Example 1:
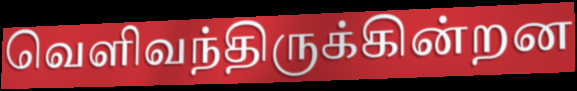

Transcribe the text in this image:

வெளிவந்திருக்கின்றன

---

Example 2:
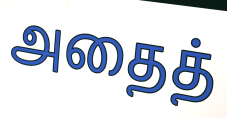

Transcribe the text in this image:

அதைத்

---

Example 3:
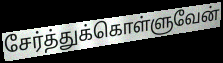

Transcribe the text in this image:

சேர்த்துக்கொள்ளுவேன்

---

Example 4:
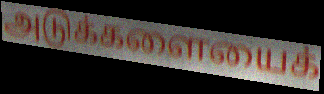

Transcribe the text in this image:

அடுக்களையைக்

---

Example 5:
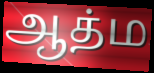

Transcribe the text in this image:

ஆத்ம